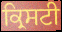
ਕ੍ਰਿਸਟੀ